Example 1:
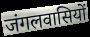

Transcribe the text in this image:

जंगलवासियों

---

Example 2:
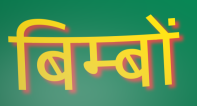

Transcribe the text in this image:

बिम्बों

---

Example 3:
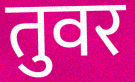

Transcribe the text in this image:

तुवर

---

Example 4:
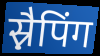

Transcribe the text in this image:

स्नैपिंग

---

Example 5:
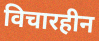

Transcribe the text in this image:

विचारहीन